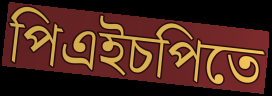
পিএইচপিতে